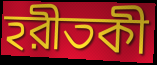
হরীতকী